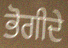
ਭੋਗੀਦੇ